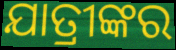
ଯାତ୍ରୀଙ୍କର